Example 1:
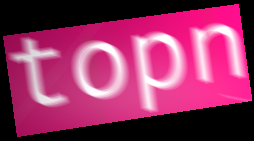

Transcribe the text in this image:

topn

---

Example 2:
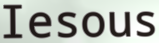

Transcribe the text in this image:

Iesous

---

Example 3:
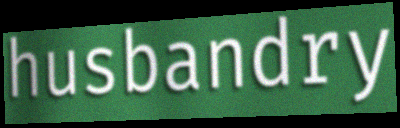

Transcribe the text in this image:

husbandry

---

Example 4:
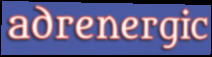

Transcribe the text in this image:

adrenergic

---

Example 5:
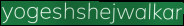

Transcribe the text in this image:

yogeshshejwalkar